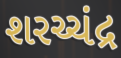
શરચ્ચંદ્ર